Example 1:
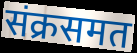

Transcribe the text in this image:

संक्रसमत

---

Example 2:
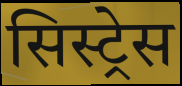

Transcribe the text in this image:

सिस्ट्रेस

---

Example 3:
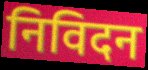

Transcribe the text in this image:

निविदन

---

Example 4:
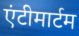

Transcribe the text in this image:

एंटीमार्टम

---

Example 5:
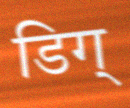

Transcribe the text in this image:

डिग्